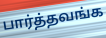
பார்த்தவங்க